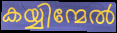
കയ്യിന്മേൽ